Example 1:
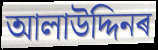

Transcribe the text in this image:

আলাউদ্দিনৰ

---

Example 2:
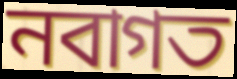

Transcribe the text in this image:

নবাগত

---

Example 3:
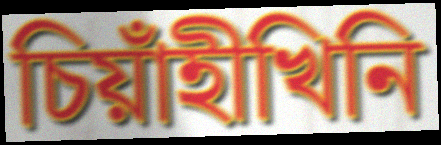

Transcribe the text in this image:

চিয়াঁহীখিনি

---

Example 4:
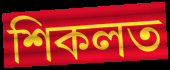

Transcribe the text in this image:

শিকলত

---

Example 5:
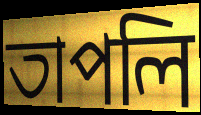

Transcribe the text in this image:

তাপলি